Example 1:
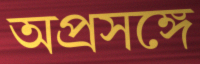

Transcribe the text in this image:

অপ্রসঙ্গে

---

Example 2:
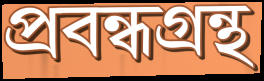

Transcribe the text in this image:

প্রবন্ধগ্রন্থ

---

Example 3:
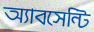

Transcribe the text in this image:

অ্যাবসেন্টি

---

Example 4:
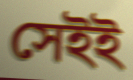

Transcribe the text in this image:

সেইই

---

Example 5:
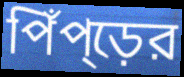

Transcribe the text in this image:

পিঁপ্‌ড়ের